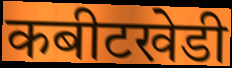
कबीटखेडी